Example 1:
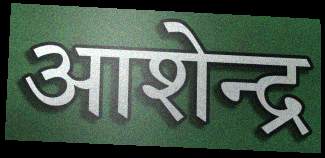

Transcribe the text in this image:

आशेन्द्र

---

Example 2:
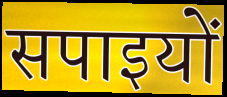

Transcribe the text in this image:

सपाइयों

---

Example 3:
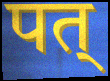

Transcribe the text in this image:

पत्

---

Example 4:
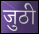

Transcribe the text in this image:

जुठी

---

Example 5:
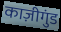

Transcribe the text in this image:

काज़ीगुंड